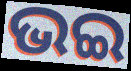
ଭଇ